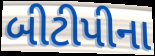
બીટીપીના